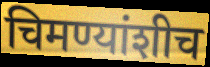
चिमण्यांशीच